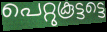
പെറ്റുകൂട്ടട്ടെ